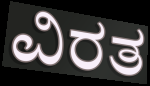
ವಿರತ